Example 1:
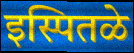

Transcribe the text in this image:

इस्पितळे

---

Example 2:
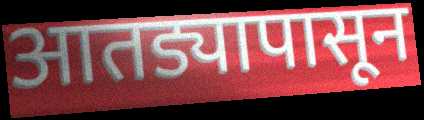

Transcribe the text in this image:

आतड्यापासून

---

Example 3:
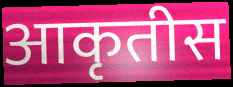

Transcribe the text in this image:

आकृतीस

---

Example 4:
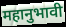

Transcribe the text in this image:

महानुभावी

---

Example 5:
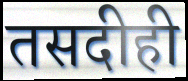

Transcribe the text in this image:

तसदीही